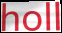
holl